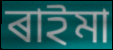
ৰাইমা